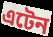
এটেন